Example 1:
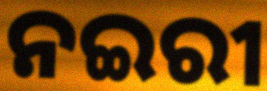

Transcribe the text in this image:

ନଇରୀ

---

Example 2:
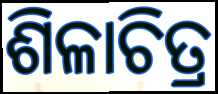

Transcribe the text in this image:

ଶିଳାଚିତ୍ର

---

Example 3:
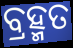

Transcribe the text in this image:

ବ୍ରହ୍ମତ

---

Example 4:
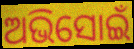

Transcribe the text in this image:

ଅଭିସୋଇଁ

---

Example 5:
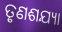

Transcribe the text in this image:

ତୃଣଶଯ୍ୟା